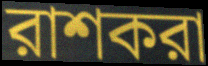
রাশকরা